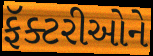
ફૅક્ટરીઓને